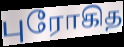
புரோகித